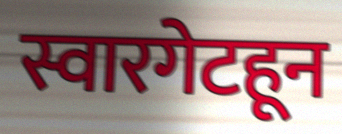
स्वारगेटहून